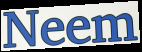
Neem